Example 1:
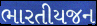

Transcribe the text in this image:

ભારતીયજન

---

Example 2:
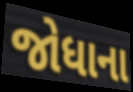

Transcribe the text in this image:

જોધાના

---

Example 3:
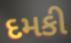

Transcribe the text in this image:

દમકી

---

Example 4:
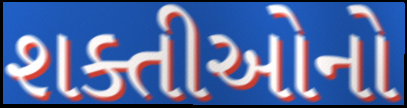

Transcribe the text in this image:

શક્તીઓનો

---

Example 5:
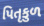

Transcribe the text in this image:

પિતૃકુળ